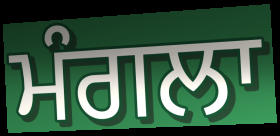
ਮੰਗਲਾ